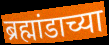
ब्रह्मांडाच्या